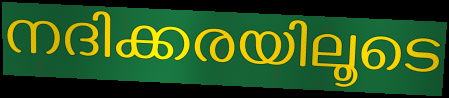
നദിക്കരയിലൂടെ